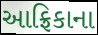
આફ્રિકાના